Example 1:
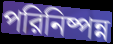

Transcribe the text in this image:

পরিনিষ্পন্ন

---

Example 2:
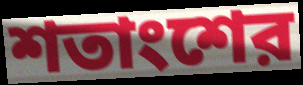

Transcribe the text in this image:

শতাংশের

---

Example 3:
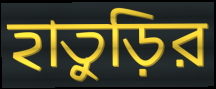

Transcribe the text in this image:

হাতুড়ির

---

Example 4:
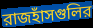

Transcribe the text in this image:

রাজহাঁসগুলির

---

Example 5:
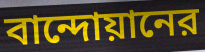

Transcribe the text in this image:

বান্দোয়ানের